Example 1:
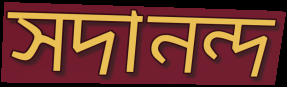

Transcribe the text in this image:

সদানন্দ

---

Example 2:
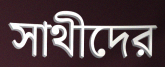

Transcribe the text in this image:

সাথীদের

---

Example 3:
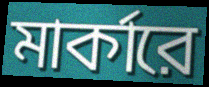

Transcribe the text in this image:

মার্কারে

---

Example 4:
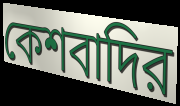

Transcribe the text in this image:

কেশবাদির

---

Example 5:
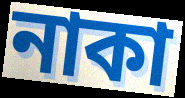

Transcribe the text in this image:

নাকা